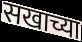
सखाच्या